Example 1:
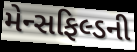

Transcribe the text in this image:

મેન્સફિલ્ડની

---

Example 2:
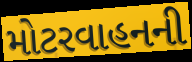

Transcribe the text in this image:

મોટરવાહનની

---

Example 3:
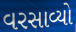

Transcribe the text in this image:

વરસાવ્યો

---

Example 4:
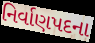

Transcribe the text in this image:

નિર્વાણપદના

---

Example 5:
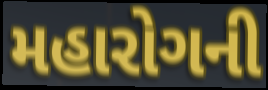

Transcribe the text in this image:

મહારોગની